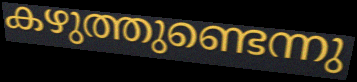
കഴുത്തുണ്ടെന്നു